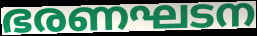
ഭരണഘടന